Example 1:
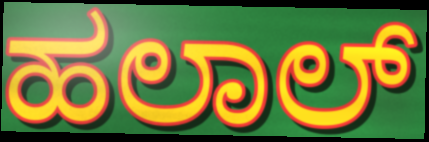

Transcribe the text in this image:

ಹಲಾಲ್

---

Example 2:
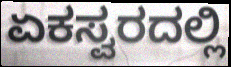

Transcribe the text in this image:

ಏಕಸ್ವರದಲ್ಲಿ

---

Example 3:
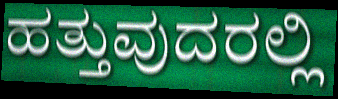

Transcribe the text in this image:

ಹತ್ತುವುದರಲ್ಲಿ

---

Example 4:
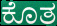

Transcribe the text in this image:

ಕೊತ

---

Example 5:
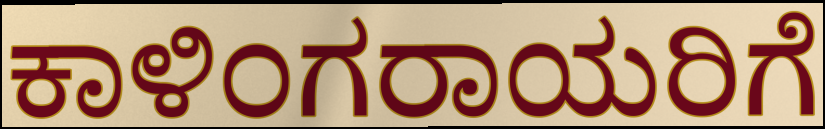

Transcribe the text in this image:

ಕಾಳಿಂಗರಾಯರಿಗೆ